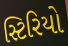
સ્ટિરિયો